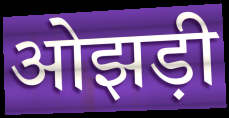
ओझड़ी